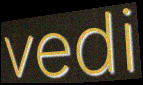
vedi